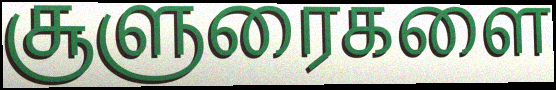
சூளுரைகளை